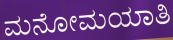
ಮನೋಮಯಾತಿ